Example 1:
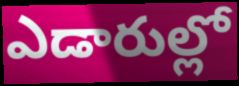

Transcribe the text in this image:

ఎడారుల్లో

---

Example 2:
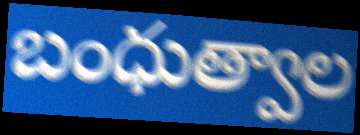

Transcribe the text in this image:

బంధుత్వాల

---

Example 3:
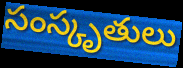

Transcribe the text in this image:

సంస్కృతులు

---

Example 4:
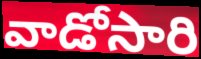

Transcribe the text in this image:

వాడోసారి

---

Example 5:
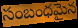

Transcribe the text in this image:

సంబంధమైన